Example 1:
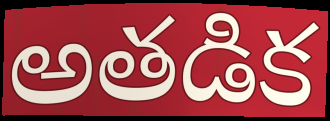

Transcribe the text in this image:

అతడిక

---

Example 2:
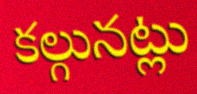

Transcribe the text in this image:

కల్గునట్లు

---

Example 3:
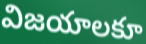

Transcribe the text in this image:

విజయాలకూ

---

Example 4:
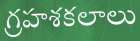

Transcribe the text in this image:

గ్రహశకలాలు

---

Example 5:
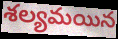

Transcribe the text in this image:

శల్యమయిన